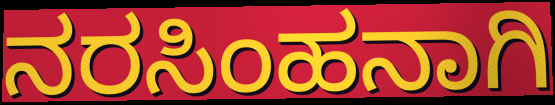
ನರಸಿಂಹನಾಗಿ